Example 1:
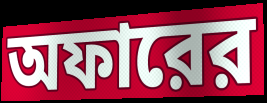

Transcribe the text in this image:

অফারের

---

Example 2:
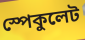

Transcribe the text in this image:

স্পেকুলেট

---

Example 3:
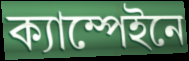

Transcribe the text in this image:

ক্যাম্পেইনে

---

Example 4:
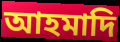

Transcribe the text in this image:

আহমাদি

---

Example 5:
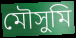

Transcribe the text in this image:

মৌসুমি